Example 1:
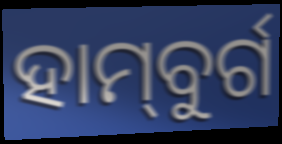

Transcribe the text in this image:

ହାମ୍‌ବୁର୍ଗ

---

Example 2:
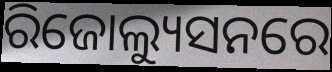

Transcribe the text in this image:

ରିଜୋଲ୍ୟୁସନରେ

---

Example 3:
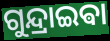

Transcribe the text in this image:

ଗୁନ୍ଦ୍ରାଇଵା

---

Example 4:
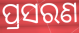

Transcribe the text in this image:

ପ୍ରସରଣ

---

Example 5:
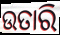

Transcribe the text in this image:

ଉତାରି